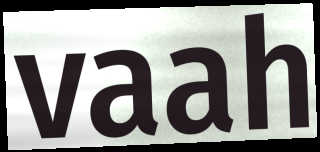
vaah